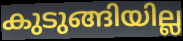
കുടുങ്ങിയില്ല